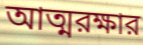
আত্মরক্ষার